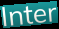
Inter